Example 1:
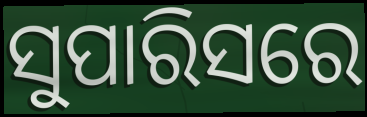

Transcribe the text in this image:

ସୁପାରିସରେ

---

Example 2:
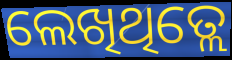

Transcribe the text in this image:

ଲେଖିଥିତ୍ଲେ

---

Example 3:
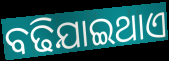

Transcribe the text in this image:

ବଢିଯାଇଥାଏ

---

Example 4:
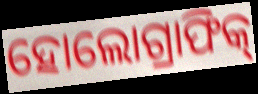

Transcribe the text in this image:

ହୋଲୋଗ୍ରାଫିକ୍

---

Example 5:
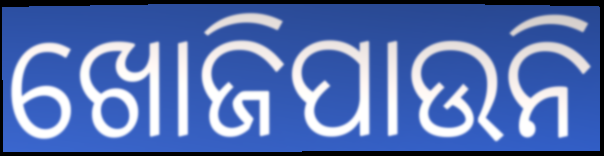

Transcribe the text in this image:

ଖୋଜିପାଉନି